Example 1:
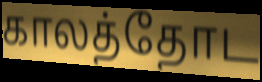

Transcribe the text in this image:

காலத்தோட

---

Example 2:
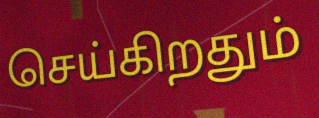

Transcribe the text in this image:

செய்கிறதும்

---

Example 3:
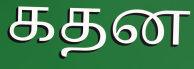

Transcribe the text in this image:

கதன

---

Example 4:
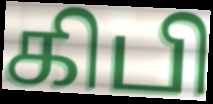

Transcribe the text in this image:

கிபி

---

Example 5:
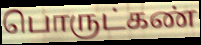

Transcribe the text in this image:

பொருட்கண்